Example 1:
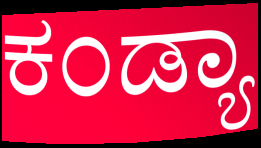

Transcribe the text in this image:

ಕಂಡ್ಯಾ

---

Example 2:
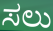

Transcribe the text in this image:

ಸಲು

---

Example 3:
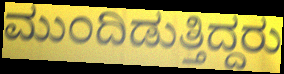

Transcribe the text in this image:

ಮುಂದಿಡುತ್ತಿದ್ದರು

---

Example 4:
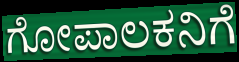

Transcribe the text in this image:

ಗೋಪಾಲಕನಿಗೆ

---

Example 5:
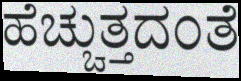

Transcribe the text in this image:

ಹೆಚ್ಚುತ್ತದಂತೆ